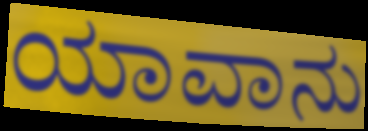
ಯಾವಾನು